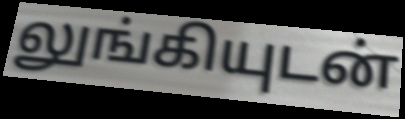
லுங்கியுடன்